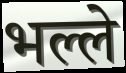
भल्ले